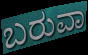
ಬರುವಾ